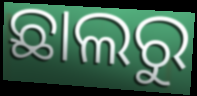
ଛାଲରୁ